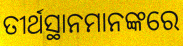
ତୀର୍ଥସ୍ଥାନମାନଙ୍କରେ